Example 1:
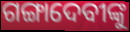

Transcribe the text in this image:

ଗଙ୍ଗାଦେବୀଙ୍କୁ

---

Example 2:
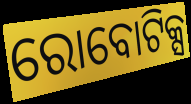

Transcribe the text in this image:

ରୋବୋଟିକ୍ସ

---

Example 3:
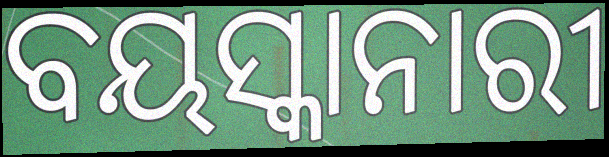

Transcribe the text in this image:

ବୟସ୍କାନାରୀ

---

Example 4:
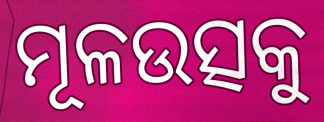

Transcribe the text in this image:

ମୂଳଉତ୍ସକୁ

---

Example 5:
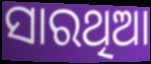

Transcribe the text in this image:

ସାରଥିଆ